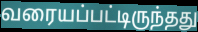
வரையப்பட்டிருந்தது